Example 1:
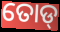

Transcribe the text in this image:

ତୋଡ୍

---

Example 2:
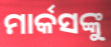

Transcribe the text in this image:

ମାର୍କସଙ୍କୁ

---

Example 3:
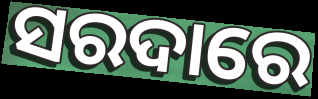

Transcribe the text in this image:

ସରଦାରେ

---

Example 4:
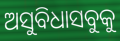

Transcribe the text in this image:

ଅସୁବିଧାସବୁକୁ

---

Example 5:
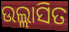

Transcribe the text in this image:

ଉଲ୍ଲାସିତ